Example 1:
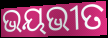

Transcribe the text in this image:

ଭୟଭୀତ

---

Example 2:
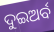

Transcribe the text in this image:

ଦୁଇଅର୍ବ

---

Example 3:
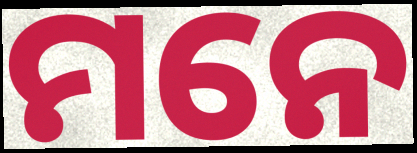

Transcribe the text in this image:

ମନେ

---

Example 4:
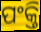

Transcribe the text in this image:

ପଂକ୍ତି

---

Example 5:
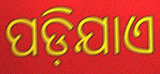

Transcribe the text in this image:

ପଡ଼ିଯାଏ